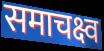
समाचक्ष्व